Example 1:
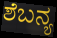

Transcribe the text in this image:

ಶೆಬನ್ಯ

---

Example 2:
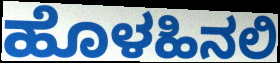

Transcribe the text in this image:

ಹೊಳಹಿನಲಿ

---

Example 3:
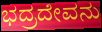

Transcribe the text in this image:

ಭದ್ರದೇವನು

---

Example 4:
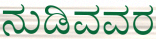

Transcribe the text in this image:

ನುಡಿವವರ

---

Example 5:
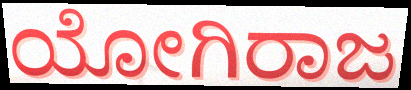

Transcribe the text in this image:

ಯೋಗಿರಾಜ